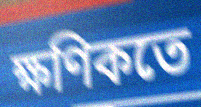
ক্ষণিকতে